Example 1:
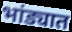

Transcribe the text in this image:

भांड्यात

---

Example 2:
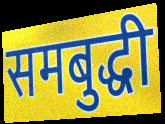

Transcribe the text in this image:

समबुद्धी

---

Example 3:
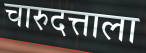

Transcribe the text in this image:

चारुदत्ताला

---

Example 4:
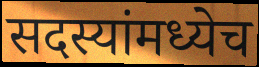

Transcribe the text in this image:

सदस्यांमध्येच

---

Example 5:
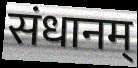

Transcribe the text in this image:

संधानम्